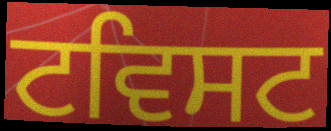
ਟਵਿਸਟ